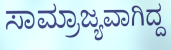
ಸಾಮ್ರಾಜ್ಯವಾಗಿದ್ದ